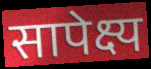
सापेक्ष्य